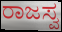
ರಾಜಸ್ವ